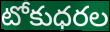
టోకుధరల